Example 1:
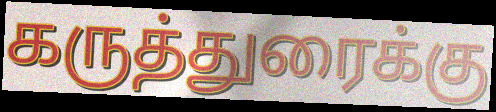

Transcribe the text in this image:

கருத்துரைக்கு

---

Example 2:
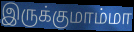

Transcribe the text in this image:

இருக்குமாம்மா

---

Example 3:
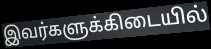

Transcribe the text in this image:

இவர்களுக்கிடையில்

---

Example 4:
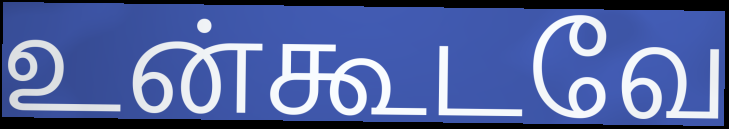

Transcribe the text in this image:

உன்கூடவே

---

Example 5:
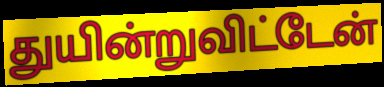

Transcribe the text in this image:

துயின்றுவிட்டேன்